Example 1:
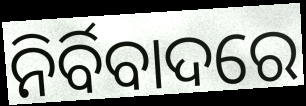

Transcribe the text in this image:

ନିର୍ବିବାଦରେ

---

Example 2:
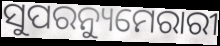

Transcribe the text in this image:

ସୁପରନ୍ୟୁମେରାରୀ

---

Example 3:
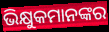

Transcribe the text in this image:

ଭିକ୍ଷୁକମାନଙ୍କର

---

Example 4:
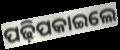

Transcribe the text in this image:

ପଢ଼ିପକାଇଲେ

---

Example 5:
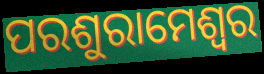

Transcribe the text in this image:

ପରଶୁରାମେଶ୍ୱର